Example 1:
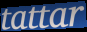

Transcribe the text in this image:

tattar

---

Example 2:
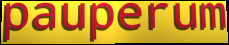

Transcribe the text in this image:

pauperum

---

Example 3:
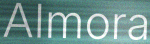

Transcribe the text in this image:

Almora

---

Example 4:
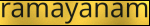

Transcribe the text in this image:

ramayanam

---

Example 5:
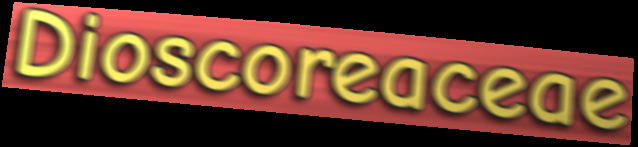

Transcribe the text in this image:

Dioscoreaceae